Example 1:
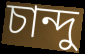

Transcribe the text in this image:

চান্দু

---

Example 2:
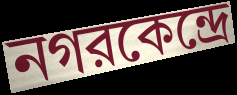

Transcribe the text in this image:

নগরকেন্দ্রে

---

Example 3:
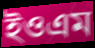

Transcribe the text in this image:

ইওএম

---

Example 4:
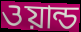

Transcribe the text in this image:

ওয়ান্ড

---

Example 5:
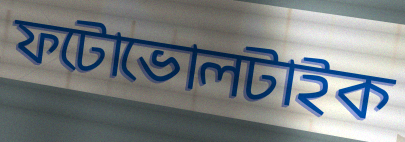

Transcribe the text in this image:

ফটোভোলটাইক